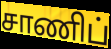
சாணிப்